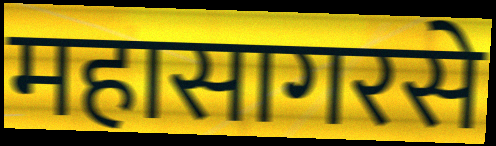
महासागरसे